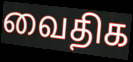
வைதிக